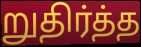
றுதிர்த்த